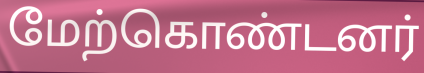
மேற்கொண்டனர்